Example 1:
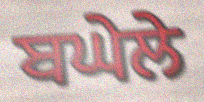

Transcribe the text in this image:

ਬਘੇਲੇ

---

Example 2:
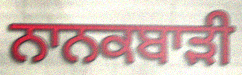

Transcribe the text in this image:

ਨਾਨਕਬਾੜੀ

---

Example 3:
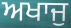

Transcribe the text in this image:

ਅਖਾਜੁ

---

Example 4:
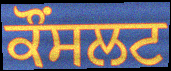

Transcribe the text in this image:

ਕੌਂਸਲਟ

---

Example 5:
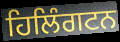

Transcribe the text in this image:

ਹਿਲਿੰਗਟਨ